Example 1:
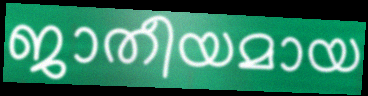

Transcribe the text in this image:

ജാതീയമായ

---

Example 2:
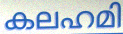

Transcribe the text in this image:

കലഹമി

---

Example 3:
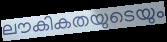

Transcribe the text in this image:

ലൗകികതയുടെയും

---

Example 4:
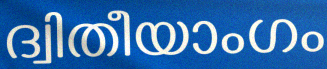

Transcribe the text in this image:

ദ്വിതീയാംഗം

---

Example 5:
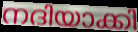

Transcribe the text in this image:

നദിയാക്കി